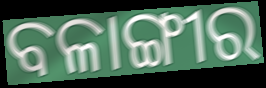
ବଳାଙ୍ଗୀର